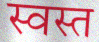
स्वस्त